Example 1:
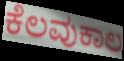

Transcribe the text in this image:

ಕೆಲವುಕಾಲ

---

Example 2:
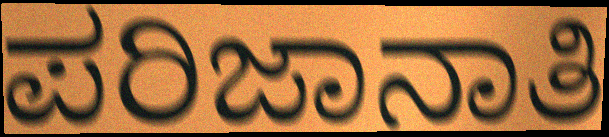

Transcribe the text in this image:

ಪರಿಜಾನಾತಿ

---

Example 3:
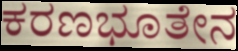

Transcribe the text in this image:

ಕರಣಭೂತೇನ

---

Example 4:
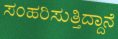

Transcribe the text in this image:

ಸಂಹರಿಸುತ್ತಿದ್ದಾನೆ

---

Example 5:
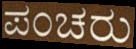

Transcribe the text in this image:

ಪಂಚರು